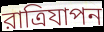
রাত্রিযাপন